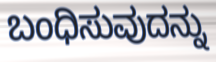
ಬಂಧಿಸುವುದನ್ನು